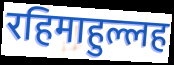
रहिमाहुल्लह